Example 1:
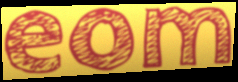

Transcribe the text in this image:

eom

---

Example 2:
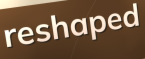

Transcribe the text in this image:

reshaped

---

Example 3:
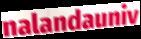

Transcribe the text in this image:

nalandauniv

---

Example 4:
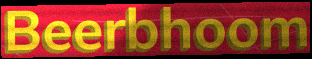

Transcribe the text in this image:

Beerbhoom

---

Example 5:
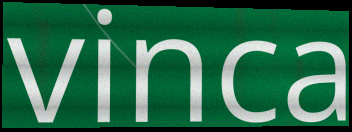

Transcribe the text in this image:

vinca